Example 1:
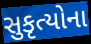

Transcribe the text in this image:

સુકૃત્યોના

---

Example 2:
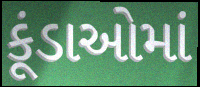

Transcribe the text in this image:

કૂંડાઓમાં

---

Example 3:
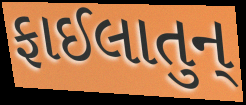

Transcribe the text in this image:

ફાઈલાતુન્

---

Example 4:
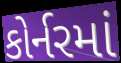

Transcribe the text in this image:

કોર્નરમાં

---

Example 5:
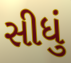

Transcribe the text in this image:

સીધું